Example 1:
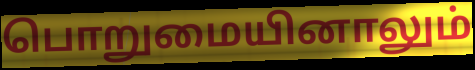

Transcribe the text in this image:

பொறுமையினாலும்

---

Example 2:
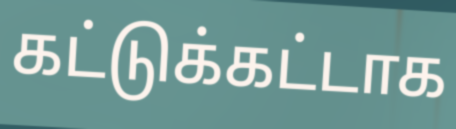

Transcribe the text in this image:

கட்டுக்கட்டாக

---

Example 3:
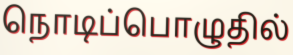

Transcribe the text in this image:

நொடிப்பொழுதில்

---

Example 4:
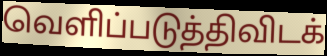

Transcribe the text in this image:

வெளிப்படுத்திவிடக்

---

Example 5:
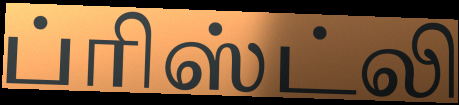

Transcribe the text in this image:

ப்ரிஸ்ட்லி